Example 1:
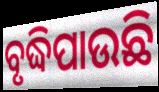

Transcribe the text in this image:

ବୃଦ୍ଧିପାଉଛି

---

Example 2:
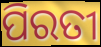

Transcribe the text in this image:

ପିରତୀ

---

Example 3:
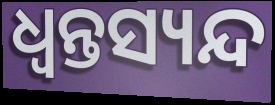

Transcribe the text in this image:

ଧ୍ଵନ୍ତସ୍ୟନ୍ଦ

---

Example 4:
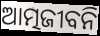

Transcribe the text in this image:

ଆତ୍ମଜୀବନି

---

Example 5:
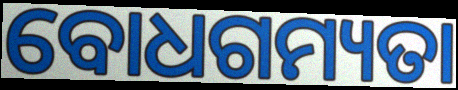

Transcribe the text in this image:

ବୋଧଗମ୍ୟତା